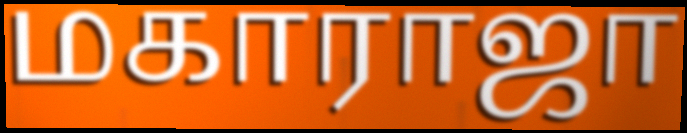
மகாராஜா